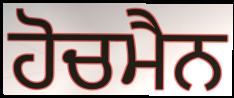
ਹੋਚਮੈਨ